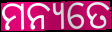
ମନ୍ୟତେ